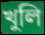
খুলি